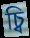
চ্বি